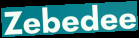
Zebedee